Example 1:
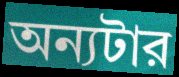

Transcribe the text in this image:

অন্যটার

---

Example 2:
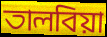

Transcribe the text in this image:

তালবিয়া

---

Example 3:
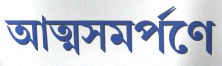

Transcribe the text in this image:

আত্মসমর্পণে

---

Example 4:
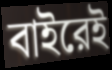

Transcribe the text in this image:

বাইরেই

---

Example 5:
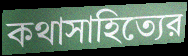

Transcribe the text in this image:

কথাসাহিত্যের